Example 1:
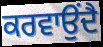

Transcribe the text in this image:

ਕਰਵਾਉਂਦੈ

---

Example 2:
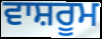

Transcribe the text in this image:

ਵਾਸ਼ਰੂਮ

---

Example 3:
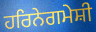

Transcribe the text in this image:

ਹਰਿਨੇਗਮੇਸ਼ੀ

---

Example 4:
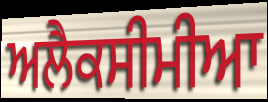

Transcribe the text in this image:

ਅਲੈਕਸੀਮੀਆ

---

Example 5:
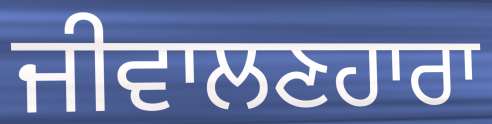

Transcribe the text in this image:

ਜੀਵਾਲਣਹਾਰਾ